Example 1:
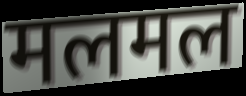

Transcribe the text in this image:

मलमल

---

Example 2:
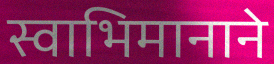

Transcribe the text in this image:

स्वाभिमानाने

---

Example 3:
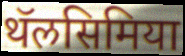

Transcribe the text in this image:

थॅलसिमिया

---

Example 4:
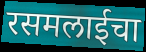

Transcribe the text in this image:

रसमलाईचा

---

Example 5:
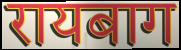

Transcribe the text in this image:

रायबाग